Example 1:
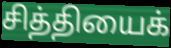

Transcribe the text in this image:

சித்தியைக்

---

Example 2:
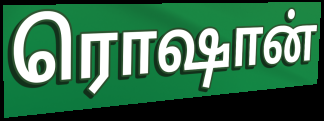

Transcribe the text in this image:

ரொஷான்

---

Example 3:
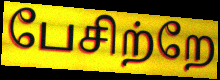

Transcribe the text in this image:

பேசிற்றே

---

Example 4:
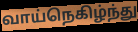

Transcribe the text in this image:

வாய்நெகிழ்ந்து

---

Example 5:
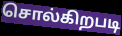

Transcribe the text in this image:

சொல்கிறபடி